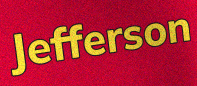
Jefferson